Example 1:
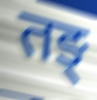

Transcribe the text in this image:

तङ्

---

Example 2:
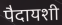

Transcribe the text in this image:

पैदायशी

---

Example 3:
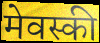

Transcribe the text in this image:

मेवस्की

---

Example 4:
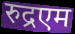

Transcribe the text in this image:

रुद्रएम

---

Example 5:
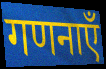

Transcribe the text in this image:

गणनाएँ